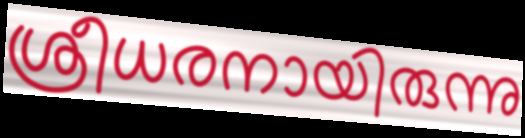
ശ്രീധരനായിരുന്നു